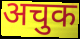
अचुक